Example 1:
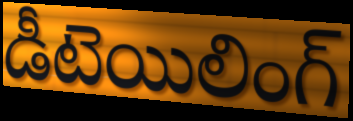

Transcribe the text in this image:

డీటెయిలింగ్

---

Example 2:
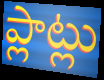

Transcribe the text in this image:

ప్లాట్లు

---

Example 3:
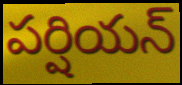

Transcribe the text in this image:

పర్షియన్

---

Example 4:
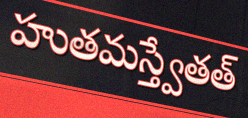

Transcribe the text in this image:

హుతమస్త్వేతత్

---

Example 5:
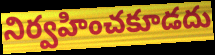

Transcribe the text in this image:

నిర్వహించకూడదు